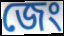
জেং